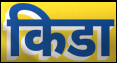
किडा